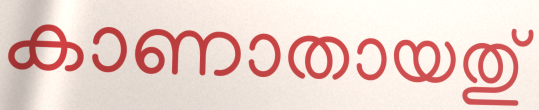
കാണാതായതു്